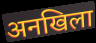
अनखिला